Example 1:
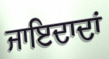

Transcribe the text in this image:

ਜਾਇਦਾਦਾਂ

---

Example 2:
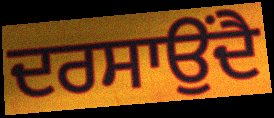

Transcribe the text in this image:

ਦਰਸਾਉਂਦੈ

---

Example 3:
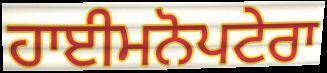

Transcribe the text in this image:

ਹਾਈਮਨੋਪਟੇਰਾ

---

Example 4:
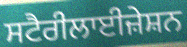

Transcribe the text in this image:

ਸਟੈਰੀਲਾਈਜ਼ੇਸ਼ਨ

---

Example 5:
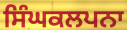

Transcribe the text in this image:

ਸਿੰਘਕਲਪਨਾ